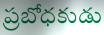
ప్రబోధకుడు